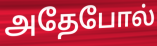
அதேபோல்